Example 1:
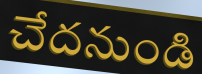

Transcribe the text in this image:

చేదనుండి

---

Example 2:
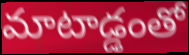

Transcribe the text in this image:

మాటాడ్డంతో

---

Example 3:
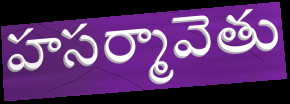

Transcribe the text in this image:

హసర్మావెతు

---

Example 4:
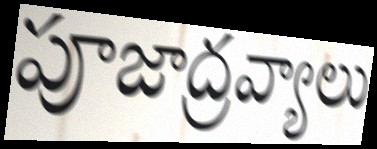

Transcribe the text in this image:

పూజాద్రవ్యాలు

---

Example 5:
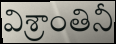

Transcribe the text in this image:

విశ్రాంతినీ